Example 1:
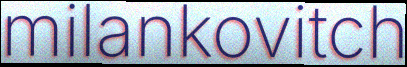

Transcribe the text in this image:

milankovitch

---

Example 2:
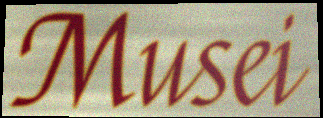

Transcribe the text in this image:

Musei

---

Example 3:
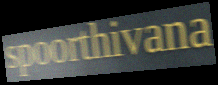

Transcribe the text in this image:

spoorthivana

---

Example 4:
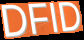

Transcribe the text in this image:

DFID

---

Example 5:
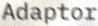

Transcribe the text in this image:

Adaptor